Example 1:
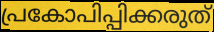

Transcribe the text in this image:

പ്രകോപിപ്പിക്കരുത്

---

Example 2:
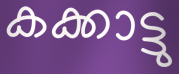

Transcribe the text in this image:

കക്കാട്ടു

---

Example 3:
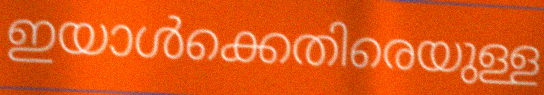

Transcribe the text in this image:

ഇയാൾക്കെതിരെയുള്ള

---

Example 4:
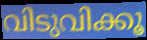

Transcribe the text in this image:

വിടുവിക്കൂ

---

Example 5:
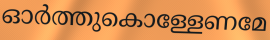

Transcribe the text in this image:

ഓർത്തുകൊള്ളേണമേ